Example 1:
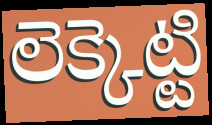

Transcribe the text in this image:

లెక్కెట్టి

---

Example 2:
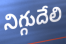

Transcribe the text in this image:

నిగ్గుదేలి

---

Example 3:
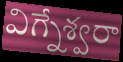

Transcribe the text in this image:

విగ్నేశ్వరా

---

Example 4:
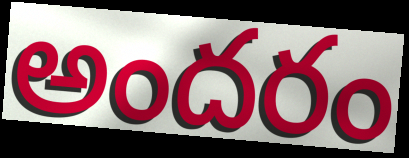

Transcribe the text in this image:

అందరం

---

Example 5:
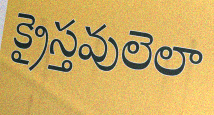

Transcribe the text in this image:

క్రైస్తవులెలా